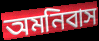
অমনিবাস